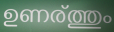
ഉണര്ത്തും